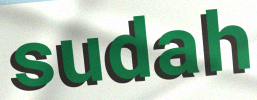
sudah